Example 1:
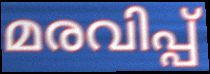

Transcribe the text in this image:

മരവിപ്പ്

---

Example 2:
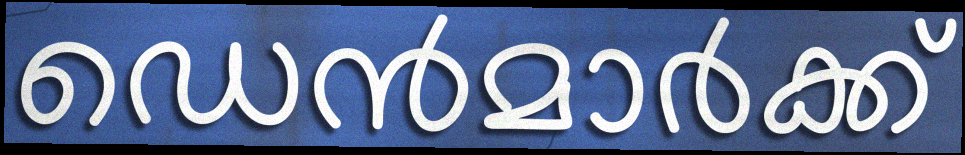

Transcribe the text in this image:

ഡെൻമാർക്ക്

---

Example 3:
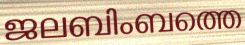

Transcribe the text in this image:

ജലബിംബത്തെ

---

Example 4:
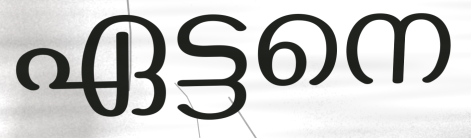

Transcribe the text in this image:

ഏട്ടനെ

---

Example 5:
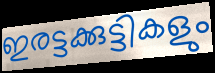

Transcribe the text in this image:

ഇരട്ടക്കുട്ടികളും